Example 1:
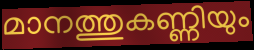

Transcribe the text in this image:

മാനത്തുകണ്ണിയും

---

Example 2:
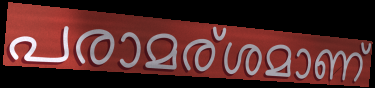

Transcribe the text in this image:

പരാമര്ശമാണ്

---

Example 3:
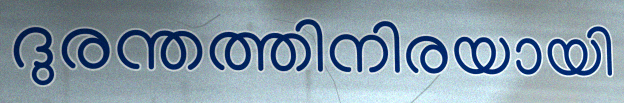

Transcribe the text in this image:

ദുരന്തത്തിനിരയായി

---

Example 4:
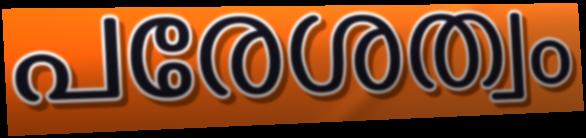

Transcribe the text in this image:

പരേശത്വം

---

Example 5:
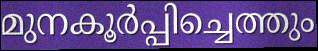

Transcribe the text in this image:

മുനകൂർപ്പിച്ചെത്തും